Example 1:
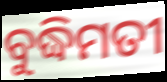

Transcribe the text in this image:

ବୁଦ୍ଧିମତୀ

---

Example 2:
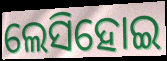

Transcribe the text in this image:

ଲେସିହୋଇ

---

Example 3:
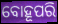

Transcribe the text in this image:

ବୋହୂପରି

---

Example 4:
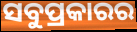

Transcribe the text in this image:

ସବୁପ୍ରକାରର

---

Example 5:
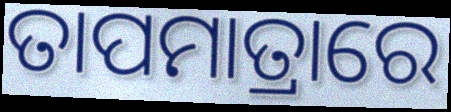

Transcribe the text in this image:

ତାପମାତ୍ରାରେ